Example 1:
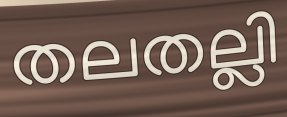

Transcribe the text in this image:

തലതല്ലി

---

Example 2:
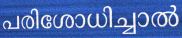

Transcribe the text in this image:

പരിശോധിച്ചാൽ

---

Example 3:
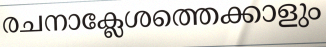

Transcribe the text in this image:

രചനാക്ലേശത്തെക്കാളും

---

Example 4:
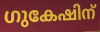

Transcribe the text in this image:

ഗുകേഷിന്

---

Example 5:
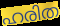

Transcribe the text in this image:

ഹരിത